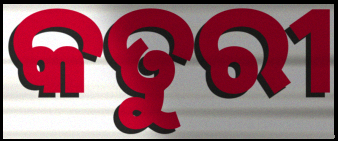
କତୁରୀ